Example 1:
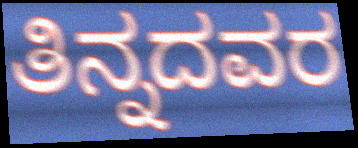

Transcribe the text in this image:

ತಿನ್ನದವರ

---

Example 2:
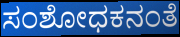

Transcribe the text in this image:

ಸಂಶೋಧಕನಂತೆ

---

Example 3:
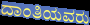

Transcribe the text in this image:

ದಾಂತಿಯವರು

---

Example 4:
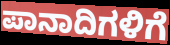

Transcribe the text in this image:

ಪಾನಾದಿಗಳಿಗೆ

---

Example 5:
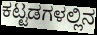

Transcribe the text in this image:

ಕಟ್ಟಡಗಳಲ್ಲಿನ